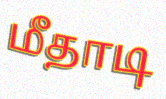
மீதாடி